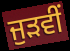
ਜੁੜਵੀਂ